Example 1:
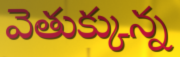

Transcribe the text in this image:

వెతుక్కున్న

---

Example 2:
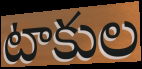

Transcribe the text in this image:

టాకుల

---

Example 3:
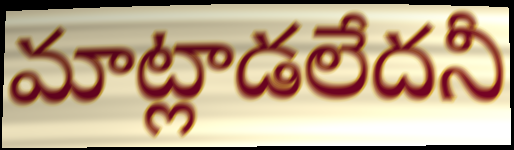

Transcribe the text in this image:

మాట్లాడలేదనీ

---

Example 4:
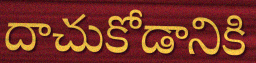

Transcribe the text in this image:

దాచుకోడానికి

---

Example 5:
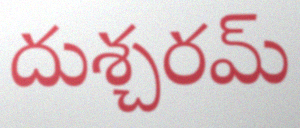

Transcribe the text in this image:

దుశ్చరమ్